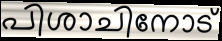
പിശാചിനോട്